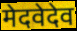
मेदवेदेव